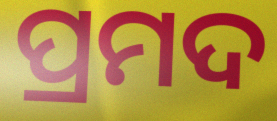
ପ୍ରମଦ